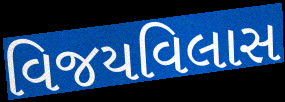
વિજયવિલાસ